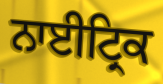
ਨਾਈਟ੍ਰਿਕ